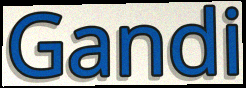
Gandi